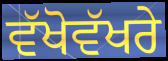
ਵੱਖੋਵੱਖਰੇ